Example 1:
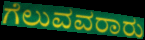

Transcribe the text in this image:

ಗೆಲುವವರಾರು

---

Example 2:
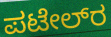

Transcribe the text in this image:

ಪಟೇಲ್‌ರ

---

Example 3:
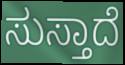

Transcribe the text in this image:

ಸುಸ್ತಾದೆ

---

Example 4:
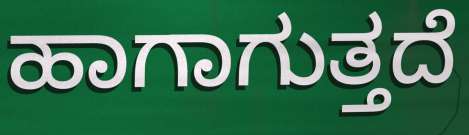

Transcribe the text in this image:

ಹಾಗಾಗುತ್ತದೆ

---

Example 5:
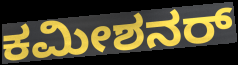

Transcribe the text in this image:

ಕಮೀಶನರ್